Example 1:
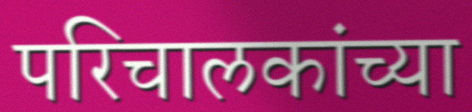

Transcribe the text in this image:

परिचालकांच्या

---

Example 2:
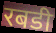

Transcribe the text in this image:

रबडी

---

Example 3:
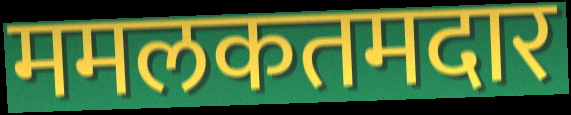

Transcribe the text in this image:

ममलकतमदार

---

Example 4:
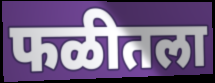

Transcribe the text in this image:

फळीतला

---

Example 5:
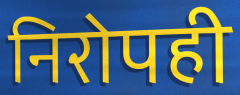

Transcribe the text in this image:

निरोपही